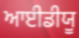
ਆਈਡੀਯੂ